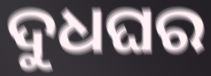
ଦୁଧଘର